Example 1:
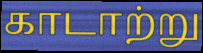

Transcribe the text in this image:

காடாற்று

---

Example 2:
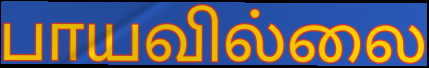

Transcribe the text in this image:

பாயவில்லை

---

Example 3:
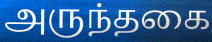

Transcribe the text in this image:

அருந்தகை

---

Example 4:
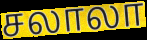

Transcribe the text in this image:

சலாலா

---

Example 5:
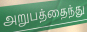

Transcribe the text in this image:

அறுபத்தைந்து